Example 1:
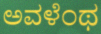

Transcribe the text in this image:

ಅವಳೆಂಥ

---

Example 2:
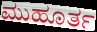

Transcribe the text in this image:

ಮುಹೂರ್ತ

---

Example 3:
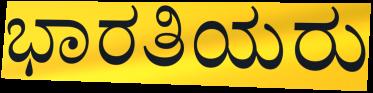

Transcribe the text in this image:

ಭಾರತಿಯರು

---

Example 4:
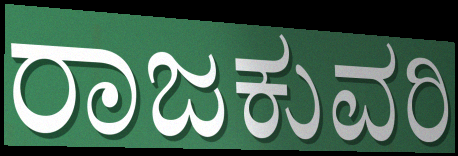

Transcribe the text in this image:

ರಾಜಕುವರಿ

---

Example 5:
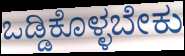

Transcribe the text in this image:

ಒಡ್ಡಿಕೊಳ್ಳಬೇಕು